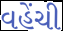
વહેંચી